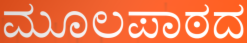
ಮೂಲಪಾಠದ